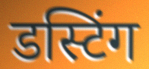
डस्टिंग